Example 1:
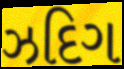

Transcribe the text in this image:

ઝદિગ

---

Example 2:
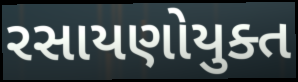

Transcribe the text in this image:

રસાયણોયુક્ત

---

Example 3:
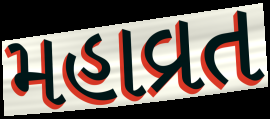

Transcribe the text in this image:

મહાવ્રત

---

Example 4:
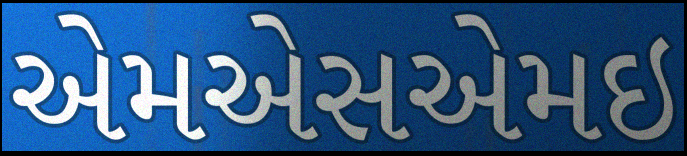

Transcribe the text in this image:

એમએસએમઇ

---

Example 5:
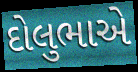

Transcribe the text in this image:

દોલુભાએ